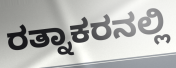
ರತ್ನಾಕರನಲ್ಲಿ